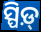
ସ୍ପିଡ଼୍